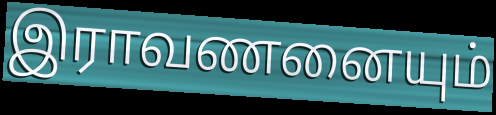
இராவணனையும்